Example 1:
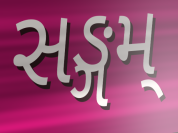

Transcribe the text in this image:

સઙ્ગમ્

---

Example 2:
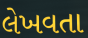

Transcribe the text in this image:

લેખવતા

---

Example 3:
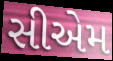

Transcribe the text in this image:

સીએમ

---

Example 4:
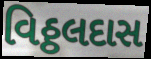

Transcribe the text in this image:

વિઠ્ઠલદાસ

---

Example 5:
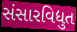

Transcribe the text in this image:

સંસારવિદ્યુત